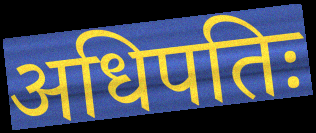
अधिपतिः